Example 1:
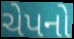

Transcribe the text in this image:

ચેપનો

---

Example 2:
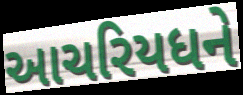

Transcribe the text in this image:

આચરિયધને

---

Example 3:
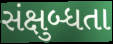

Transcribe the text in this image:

સંક્ષુબ્ધતા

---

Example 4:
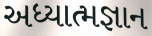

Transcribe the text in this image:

અધ્યાત્મજ્ઞાન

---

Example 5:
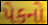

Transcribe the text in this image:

પેકનો